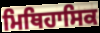
ਮਿਥਿਹਾਸਿਕ